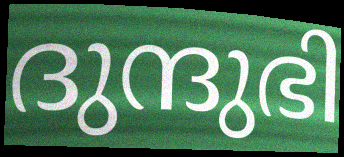
ദുന്ദുഭി